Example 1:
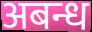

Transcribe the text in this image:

अबन्ध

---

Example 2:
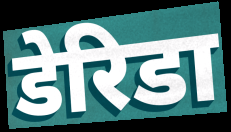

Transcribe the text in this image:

डेरिडा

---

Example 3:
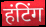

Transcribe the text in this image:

हंटिंग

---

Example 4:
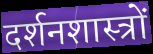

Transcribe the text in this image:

दर्शनशास्त्रों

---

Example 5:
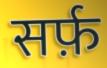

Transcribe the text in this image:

सर्फ़